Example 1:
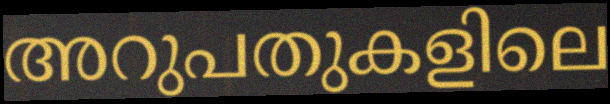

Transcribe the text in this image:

അറുപതുകളിലെ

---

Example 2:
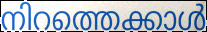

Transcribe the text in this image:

നിറത്തെക്കാൾ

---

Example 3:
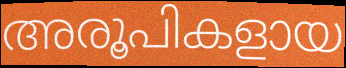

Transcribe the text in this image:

അരൂപികളായ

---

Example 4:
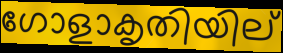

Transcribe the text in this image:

ഗോളാകൃതിയില്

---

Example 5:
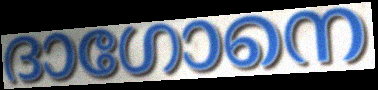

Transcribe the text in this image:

ദാഗോനെ